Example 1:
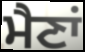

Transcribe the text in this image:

ਮੈਣਾਂ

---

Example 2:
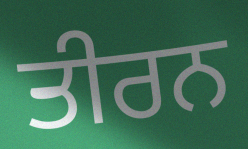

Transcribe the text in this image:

ਤੀਰਨ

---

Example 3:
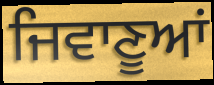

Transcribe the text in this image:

ਜਿਵਾਣੂਆਂ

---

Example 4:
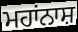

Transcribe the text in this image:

ਮਹਾਂਨਾਸ਼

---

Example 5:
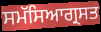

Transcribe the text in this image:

ਸਮੱਸਿਆਗ੍ਰਸਤ